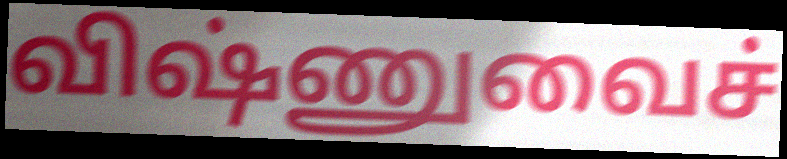
விஷ்ணுவைச்